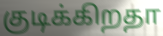
குடிக்கிறதா